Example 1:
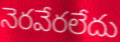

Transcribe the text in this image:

నెరవేరలేదు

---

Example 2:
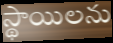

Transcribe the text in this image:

స్థాయిలను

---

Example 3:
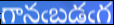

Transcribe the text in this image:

గానఁబడఁగ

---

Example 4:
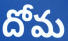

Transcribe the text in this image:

దోమ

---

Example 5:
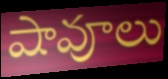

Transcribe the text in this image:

షావూలు